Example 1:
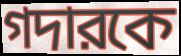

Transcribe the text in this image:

গদারকে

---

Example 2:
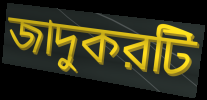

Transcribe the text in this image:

জাদুকরটি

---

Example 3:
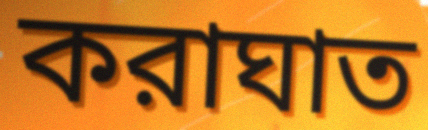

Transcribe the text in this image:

করাঘাত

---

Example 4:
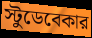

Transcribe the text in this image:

স্টুডেবেকার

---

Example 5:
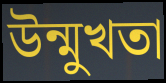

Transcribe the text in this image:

উন্মুখতা